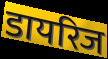
डायरिज